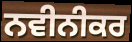
ਨਵੀਨੀਕਰ